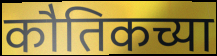
कौतिकच्या